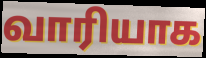
வாரியாக